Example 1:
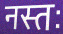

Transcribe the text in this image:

नस्तः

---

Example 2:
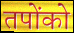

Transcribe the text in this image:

तपोंको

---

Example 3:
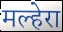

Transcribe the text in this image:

मल्हेरा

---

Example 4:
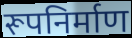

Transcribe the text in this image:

रूपनिर्माण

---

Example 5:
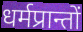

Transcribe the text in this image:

धर्मप्रान्तों